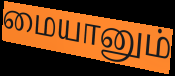
மையானும்